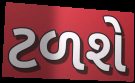
ટળશે